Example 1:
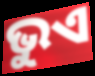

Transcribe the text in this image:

ଭୁଏ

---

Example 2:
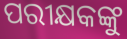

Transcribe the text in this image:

ପରୀକ୍ଷକଙ୍କୁ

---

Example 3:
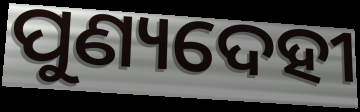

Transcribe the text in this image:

ପୁଣ୍ୟଦେହୀ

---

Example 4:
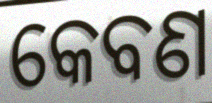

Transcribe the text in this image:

କେବଣ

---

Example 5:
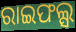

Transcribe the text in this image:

ରାଇଫଲ୍ସ